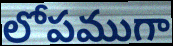
లోపముగా